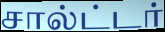
சால்ட்டர்